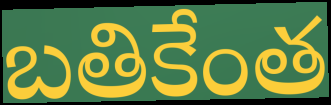
బతికేంత